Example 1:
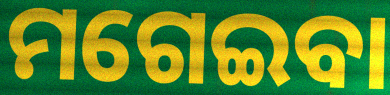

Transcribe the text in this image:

ମଗେଇବା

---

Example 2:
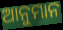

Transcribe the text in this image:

ଆନୁମାନ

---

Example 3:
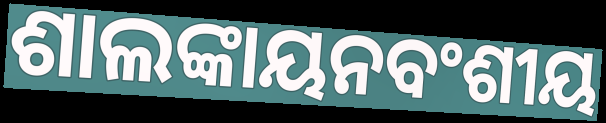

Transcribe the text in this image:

ଶାଲଙ୍କାୟନବଂଶୀୟ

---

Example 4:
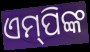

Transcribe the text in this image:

ଏମ୍‌ପିଙ୍କ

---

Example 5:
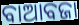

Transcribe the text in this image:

ବାଆବଜା